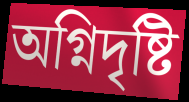
অগ্নিদৃষ্টি